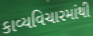
કાવ્યવિચારમાંથી